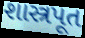
શાસ્ત્રપૂત